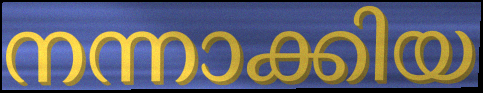
നന്നാക്കിയ